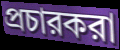
প্রচারকরা